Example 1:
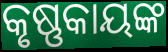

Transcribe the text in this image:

କୃଷ୍ଣକାୟଙ୍କ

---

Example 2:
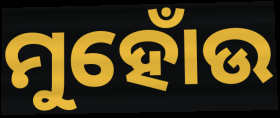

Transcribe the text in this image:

ମୁହୋଁଉ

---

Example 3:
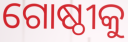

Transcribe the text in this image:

ଗୋଷ୍ଠୀକୁ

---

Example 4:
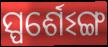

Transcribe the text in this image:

ସ୍ପର୍ଶେଽଙ୍ଗ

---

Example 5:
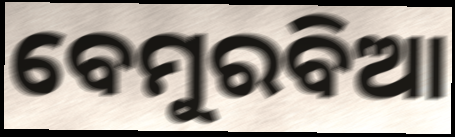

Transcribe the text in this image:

ବେମୁରବିଆ